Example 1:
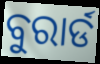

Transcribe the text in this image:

ବୁରାର୍ଡ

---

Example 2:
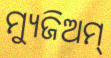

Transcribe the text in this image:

ମ୍ୟୁଜିଅମ୍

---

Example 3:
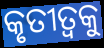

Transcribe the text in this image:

କୃତୀତ୍ଵକୁ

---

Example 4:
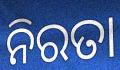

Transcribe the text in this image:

ନିରତା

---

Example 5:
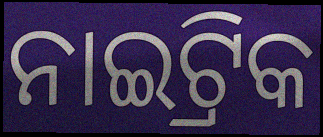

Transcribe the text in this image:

ନାଇଟ୍ରିକ